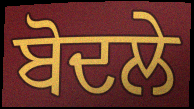
ਬੋਦਲੇ